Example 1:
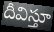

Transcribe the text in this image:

దీవిస్తూ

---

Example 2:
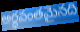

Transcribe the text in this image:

అర్ధవంతమైనది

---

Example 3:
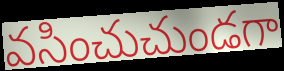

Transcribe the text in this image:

వసించుచుండగా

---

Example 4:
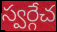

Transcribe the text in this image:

స్వర్గేచ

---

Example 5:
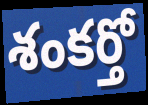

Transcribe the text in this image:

శంకర్తో